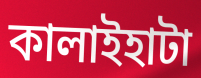
কালাইহাটা